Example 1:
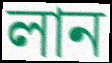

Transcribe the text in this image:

লান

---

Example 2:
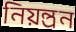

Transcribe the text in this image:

নিয়ন্ত্ৰন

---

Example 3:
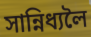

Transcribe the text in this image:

সান্নিধ্যলৈ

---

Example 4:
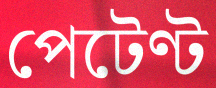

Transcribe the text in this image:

পেটেণ্ট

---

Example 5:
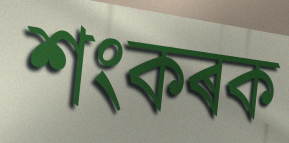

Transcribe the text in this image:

শংকৰক